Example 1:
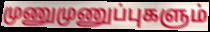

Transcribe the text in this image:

முணுமுணுப்புகளும்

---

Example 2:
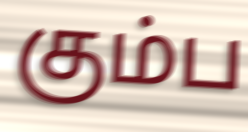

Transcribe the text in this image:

கும்ப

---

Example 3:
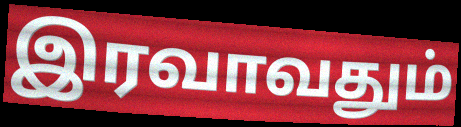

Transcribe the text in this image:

இரவாவதும்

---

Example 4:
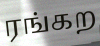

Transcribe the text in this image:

ரங்கற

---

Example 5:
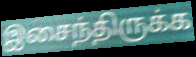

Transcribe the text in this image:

இசைந்திருக்க